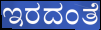
ಇರದಂತೆ